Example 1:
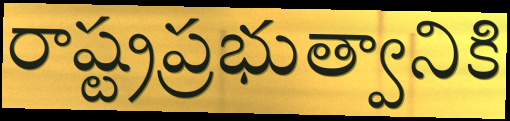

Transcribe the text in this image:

రాష్ట్రప్రభుత్వానికి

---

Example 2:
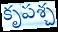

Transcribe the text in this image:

కృపశ్చ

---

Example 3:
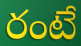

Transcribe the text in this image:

రంటే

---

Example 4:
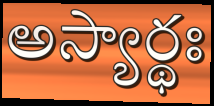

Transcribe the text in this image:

అస్యార్థః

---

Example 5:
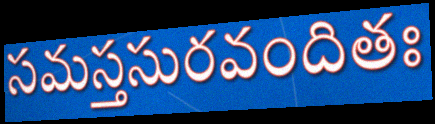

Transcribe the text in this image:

సమస్తసురవందితః